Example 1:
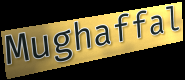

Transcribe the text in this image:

Mughaffal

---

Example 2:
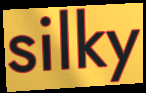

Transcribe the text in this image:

silky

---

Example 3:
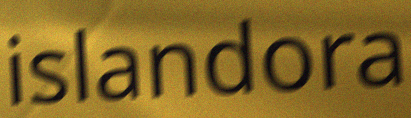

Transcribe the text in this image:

islandora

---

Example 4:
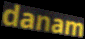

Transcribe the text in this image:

danam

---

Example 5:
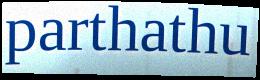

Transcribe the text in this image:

parthathu